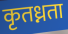
कृतध्नता